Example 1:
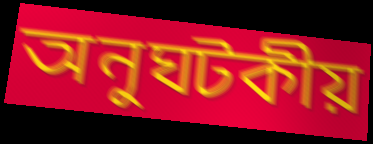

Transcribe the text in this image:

অনুঘটকীয়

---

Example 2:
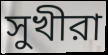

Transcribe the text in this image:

সুখীরা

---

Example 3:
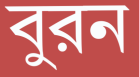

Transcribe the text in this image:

বুরন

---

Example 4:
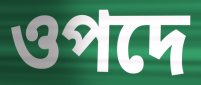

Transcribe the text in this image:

ওপদে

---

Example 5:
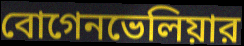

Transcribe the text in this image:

বোগেনভেলিয়ার